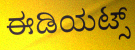
ಈಡಿಯಟ್ಸ್